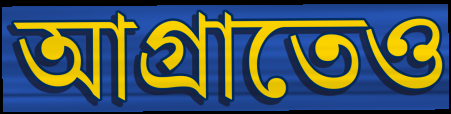
আগ্রাতেও